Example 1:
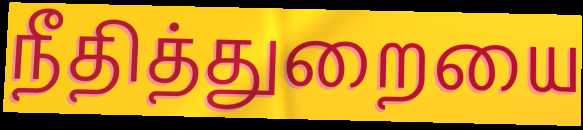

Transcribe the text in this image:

நீதித்துறையை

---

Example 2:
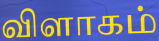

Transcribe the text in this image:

விளாகம்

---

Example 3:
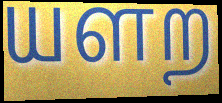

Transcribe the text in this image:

யளற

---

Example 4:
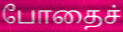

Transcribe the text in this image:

போதைச்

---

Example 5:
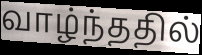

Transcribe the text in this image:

வாழ்ந்ததில்